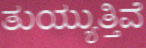
ತುಯ್ಯುತ್ತಿವೆ